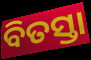
ବିତସ୍ତା